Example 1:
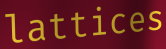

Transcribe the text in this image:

lattices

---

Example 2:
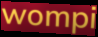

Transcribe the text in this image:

wompi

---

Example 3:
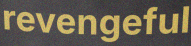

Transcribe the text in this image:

revengeful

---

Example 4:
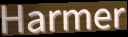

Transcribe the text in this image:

Harmer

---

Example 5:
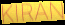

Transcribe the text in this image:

KIRAN